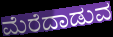
ಮೆರೆದಾಡುವ